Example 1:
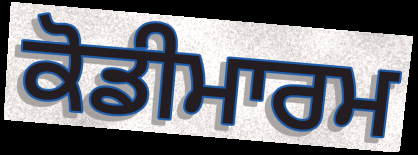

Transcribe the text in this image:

ਕੋਡੀਮਾਰਮ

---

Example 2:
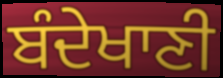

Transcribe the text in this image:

ਬੰਦੇਖਾਣੀ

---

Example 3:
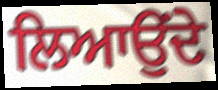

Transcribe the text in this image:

ਲਿਆਉੁਂਦੇ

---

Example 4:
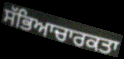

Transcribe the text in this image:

ਸੱਭਿਆਚਾਰਕਤਾ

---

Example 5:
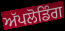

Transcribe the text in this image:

ਅੱਪਲੋਡਿੰਗ